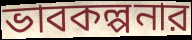
ভাবকল্পনার